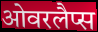
ओवरलैप्स